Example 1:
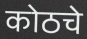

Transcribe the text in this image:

कोठचे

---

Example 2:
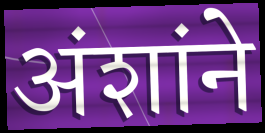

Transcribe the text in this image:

अंशांने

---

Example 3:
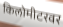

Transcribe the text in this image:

किलोमीटरवर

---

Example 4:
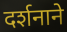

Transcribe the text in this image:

दर्शनाने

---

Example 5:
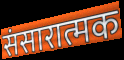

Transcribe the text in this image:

संसारात्मक